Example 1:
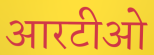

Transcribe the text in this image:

आरटीओ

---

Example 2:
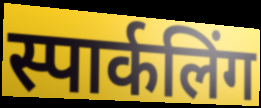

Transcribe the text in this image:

स्पार्कलिंग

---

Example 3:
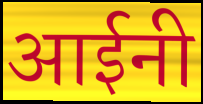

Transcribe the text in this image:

आईनी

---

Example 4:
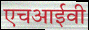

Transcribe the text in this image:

एचआईवी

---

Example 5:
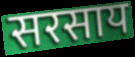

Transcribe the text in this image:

सरसाय